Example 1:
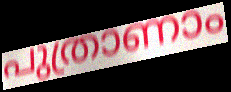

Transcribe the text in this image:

പുത്രാണാം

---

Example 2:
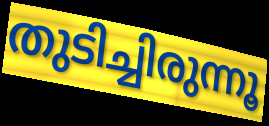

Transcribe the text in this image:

തുടിച്ചിരുന്നൂ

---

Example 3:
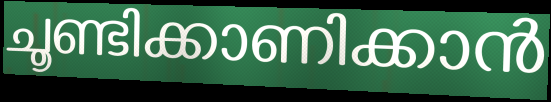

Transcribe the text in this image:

ചൂണ്ടിക്കാണിക്കാൻ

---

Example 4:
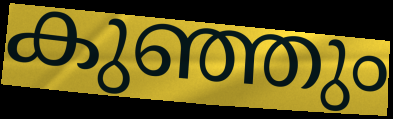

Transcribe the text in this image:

കുഞ്ഞും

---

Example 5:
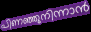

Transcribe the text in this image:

പിണഞ്ഞുനിന്നാൻ